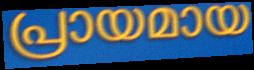
പ്രായമായ